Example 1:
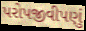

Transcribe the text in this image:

પરોપજીવીપણું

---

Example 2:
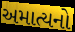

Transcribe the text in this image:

અમાત્યનો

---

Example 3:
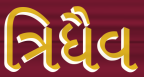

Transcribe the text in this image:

ત્રિધૈવ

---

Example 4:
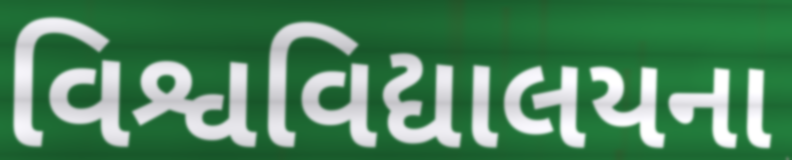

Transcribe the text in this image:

વિશ્વવિદ્યાલયના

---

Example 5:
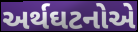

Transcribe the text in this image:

અર્થઘટનોએ